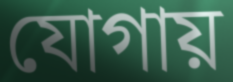
যোগায়